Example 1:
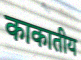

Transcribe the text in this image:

काकातीय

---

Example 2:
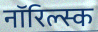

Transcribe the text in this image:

नॉरिल्स्क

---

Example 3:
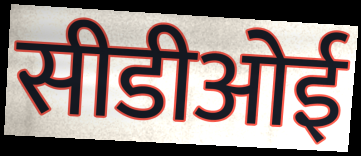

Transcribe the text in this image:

सीडीओई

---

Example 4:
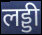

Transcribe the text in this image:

लड्डी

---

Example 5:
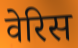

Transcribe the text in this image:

वेरिस